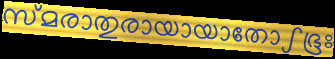
സ്മരാതുരായായാതോഽഭൂഃ